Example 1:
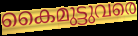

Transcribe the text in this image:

കൈമുട്ടുവരെ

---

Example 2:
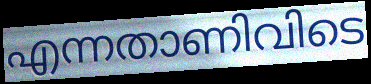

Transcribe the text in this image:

എന്നതാണിവിടെ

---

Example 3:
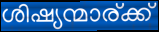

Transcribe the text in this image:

ശിഷ്യന്മാര്ക്ക്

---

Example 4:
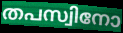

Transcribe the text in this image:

തപസ്വിനോ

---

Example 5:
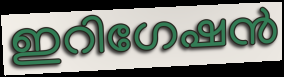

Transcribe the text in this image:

ഇറിഗേഷൻ